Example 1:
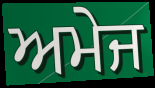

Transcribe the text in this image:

ਅਮੇਜ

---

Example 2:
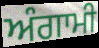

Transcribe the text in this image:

ਅੰਗਾਮੀ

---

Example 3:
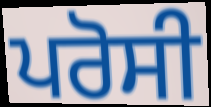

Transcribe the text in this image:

ਪਰੋਸੀ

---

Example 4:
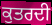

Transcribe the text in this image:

ਕੁਤਰਦੀ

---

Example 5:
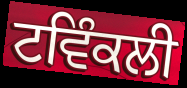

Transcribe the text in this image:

ਟਵਿੰਕਲੀ